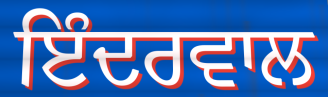
ਇੰਦਰਵਾਲ